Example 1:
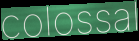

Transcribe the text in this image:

colossal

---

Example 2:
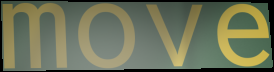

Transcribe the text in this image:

move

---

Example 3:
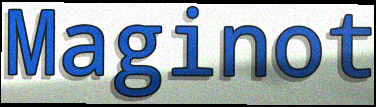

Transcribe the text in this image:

Maginot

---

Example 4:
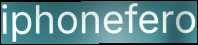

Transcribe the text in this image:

iphonefero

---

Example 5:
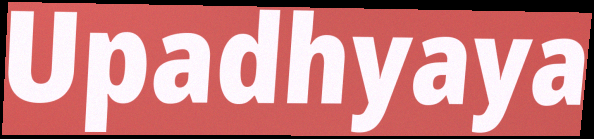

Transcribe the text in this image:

Upadhyaya